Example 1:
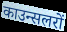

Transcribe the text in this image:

काउन्सलरों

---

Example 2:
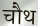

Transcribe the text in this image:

चौथ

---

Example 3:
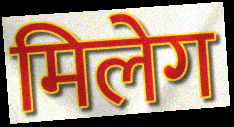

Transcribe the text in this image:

मिलेग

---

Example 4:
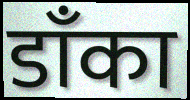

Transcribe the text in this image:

डाँका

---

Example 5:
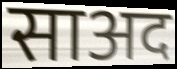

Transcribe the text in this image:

साअद